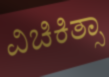
ವಿಚಿಕಿತ್ಸಾ